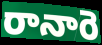
రానారె